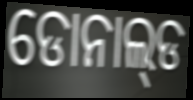
ଡୋନାଲ୍‌ଡ